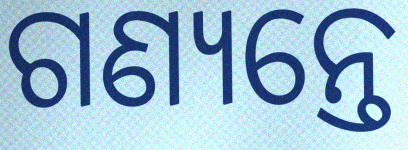
ଗଣ୍ୟନ୍ତେ